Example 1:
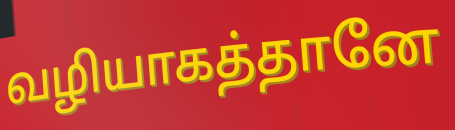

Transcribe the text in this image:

வழியாகத்தானே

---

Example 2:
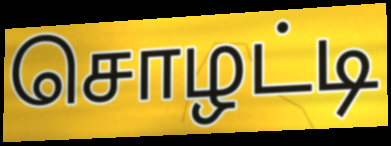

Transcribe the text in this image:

சொழட்டி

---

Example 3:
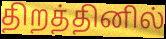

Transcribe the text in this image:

திறத்தினில்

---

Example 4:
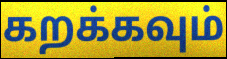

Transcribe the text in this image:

கறக்கவும்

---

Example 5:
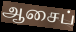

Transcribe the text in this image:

ஆசைப்